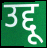
उद्दू